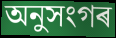
অনুসংগৰ